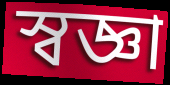
স্বজ্ঞা